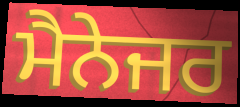
ਮੈਨੇਜਰ